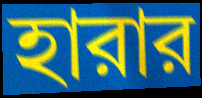
হারার